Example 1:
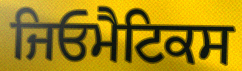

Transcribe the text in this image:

ਜਿਓਮੈਟਿਕਸ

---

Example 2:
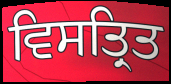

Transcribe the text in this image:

ਵਿਸਤ੍ਰਿਤ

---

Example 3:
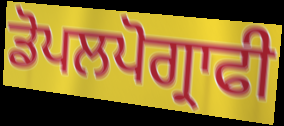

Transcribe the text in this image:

ਡੋਪਲਪੋਗ੍ਰਾਫੀ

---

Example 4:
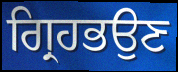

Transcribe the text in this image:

ਗ੍ਰਿਹਭਉਣ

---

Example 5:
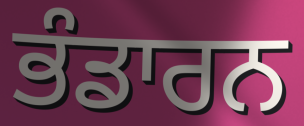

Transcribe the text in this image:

ਭੰਡਾਰਨ